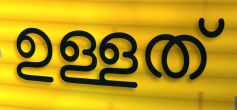
ഉള്ളത്